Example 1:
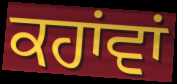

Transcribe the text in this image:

ਕਹਾਂਵਾਂ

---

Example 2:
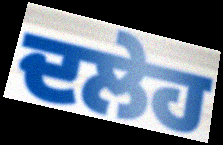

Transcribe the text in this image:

ਦਲੇਹ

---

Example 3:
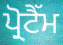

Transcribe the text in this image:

ਪ੍ਰੋਟੈੱਮ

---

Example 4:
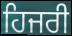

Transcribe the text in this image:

ਹਿਜਰੀ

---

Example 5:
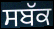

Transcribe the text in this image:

ਸਬੱਕ